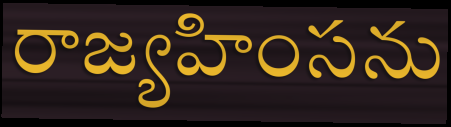
రాజ్యహింసను